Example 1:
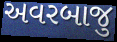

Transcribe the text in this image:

અવરબાજુ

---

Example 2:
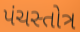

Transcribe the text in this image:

પંચસ્તોત્ર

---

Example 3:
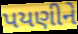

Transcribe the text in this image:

પયણીને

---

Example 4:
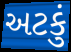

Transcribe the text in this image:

અટકું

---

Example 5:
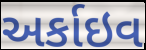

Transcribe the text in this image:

અર્કાઇવ